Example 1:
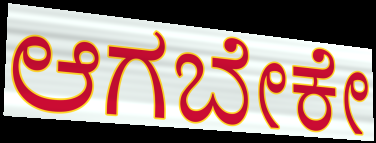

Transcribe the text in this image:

ಆಗಬೇಕೇ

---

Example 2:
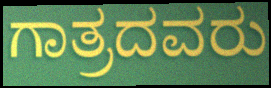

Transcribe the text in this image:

ಗಾತ್ರದವರು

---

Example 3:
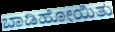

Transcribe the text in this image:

ಬಾಡಿಹೋಯಿತು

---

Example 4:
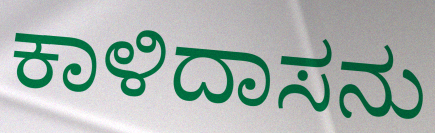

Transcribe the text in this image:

ಕಾಳಿದಾಸನು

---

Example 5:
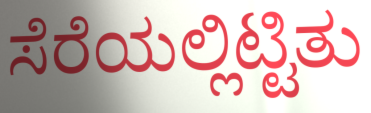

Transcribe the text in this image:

ಸೆರೆಯಲ್ಲಿಟ್ಟಿತು